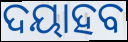
ଦୟାହବ